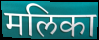
मलिका